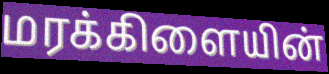
மரக்கிளையின்